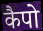
कैपो